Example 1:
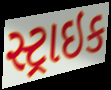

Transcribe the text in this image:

સ્ટ્રાઇક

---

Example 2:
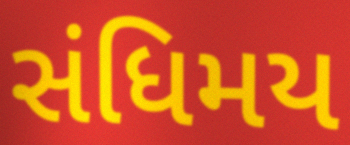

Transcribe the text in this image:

સંધિમય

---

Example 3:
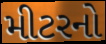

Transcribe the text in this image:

મીટરનો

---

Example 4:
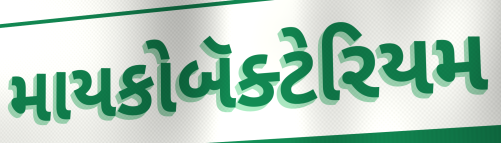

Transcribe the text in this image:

માયકોબૅક્ટેરિયમ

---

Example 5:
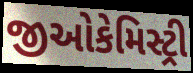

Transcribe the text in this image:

જીઓકેમિસ્ટ્રી